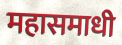
महासमाधी